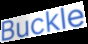
Buckle